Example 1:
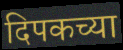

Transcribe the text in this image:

दिपकच्या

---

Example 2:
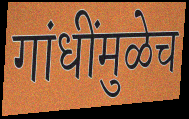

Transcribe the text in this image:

गांधींमुळेच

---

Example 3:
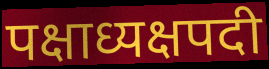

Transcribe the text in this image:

पक्षाध्यक्षपदी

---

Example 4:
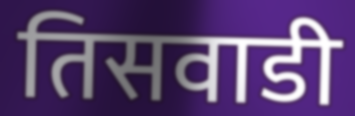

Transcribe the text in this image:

तिसवाडी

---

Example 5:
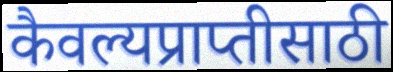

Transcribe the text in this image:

कैवल्यप्राप्तीसाठी